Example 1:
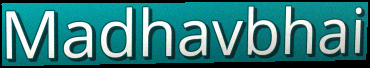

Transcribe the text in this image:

Madhavbhai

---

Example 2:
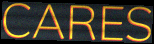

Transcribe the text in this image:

CARES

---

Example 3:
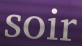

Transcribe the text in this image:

soir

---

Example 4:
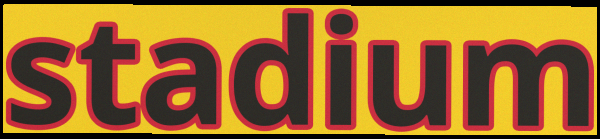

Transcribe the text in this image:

stadium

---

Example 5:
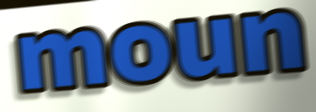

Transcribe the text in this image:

moun